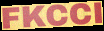
FKCCI